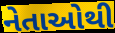
નેતાઓથી